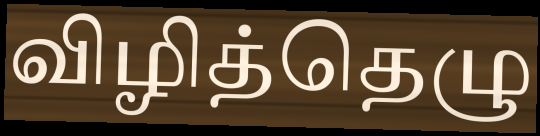
விழித்தெழு